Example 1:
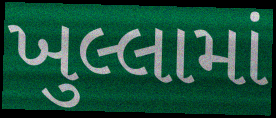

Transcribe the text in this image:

ખુલ્લામાં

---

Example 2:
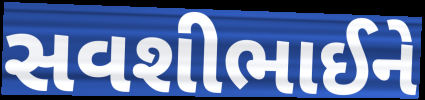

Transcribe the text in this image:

સવશીભાઈને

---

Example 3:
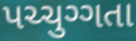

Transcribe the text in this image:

પચ્ચુગ્ગતા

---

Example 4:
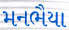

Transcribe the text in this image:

મનભૈયા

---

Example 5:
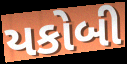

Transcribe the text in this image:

યકોબી